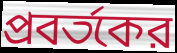
প্রবর্তকের